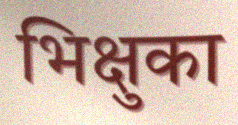
भिक्षुका